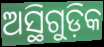
ଅସ୍ଥିଗୁଡ଼ିକ